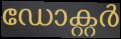
ഡോക്റ്റർ